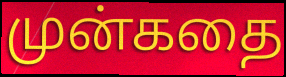
முன்கதை